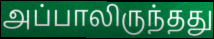
அப்பாலிருந்தது